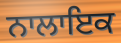
ਨਾਲਾਇਕ